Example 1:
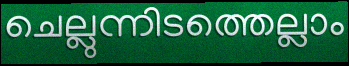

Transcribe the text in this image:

ചെല്ലുന്നിടത്തെല്ലാം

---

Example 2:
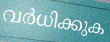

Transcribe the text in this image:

വർധിക്കുക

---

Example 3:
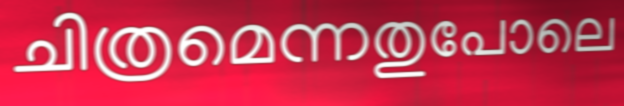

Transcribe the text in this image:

ചിത്രമെന്നതുപോലെ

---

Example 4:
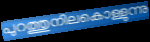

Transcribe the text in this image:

പുറത്തുനിലകൊള്ളുന്നു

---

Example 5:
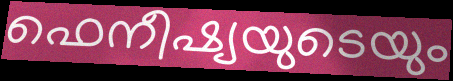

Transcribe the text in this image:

ഫെനീഷ്യയുടെയും